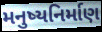
મનુષ્યનિર્માણ